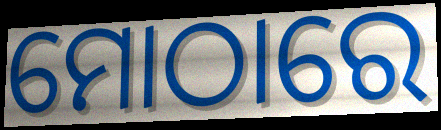
ମୋଠାରେ